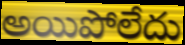
అయిపోలేదు